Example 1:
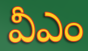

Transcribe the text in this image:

వీఎం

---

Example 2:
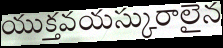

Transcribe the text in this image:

యుక్తవయస్కురాలైన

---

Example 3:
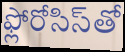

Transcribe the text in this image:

ఫ్లోరోసిస్‌తో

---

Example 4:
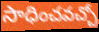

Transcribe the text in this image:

సాధించవచ్చో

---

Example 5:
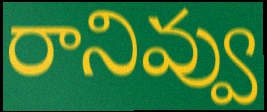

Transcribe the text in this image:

రానివ్వు